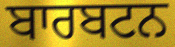
ਬਾਰਬਟਨ